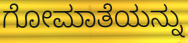
ಗೋಮಾತೆಯನ್ನು